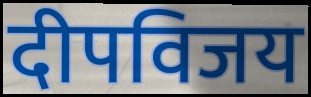
दीपविजय